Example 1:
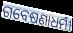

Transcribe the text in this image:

ଗବେଷଣାଧର୍ମୀ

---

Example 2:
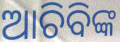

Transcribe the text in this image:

ଆଚିବିଙ୍କ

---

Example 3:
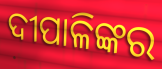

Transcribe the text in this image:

ଦୀପାଳିଙ୍କର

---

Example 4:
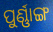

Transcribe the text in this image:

ପୁର୍ଣ୍ଣାଙ୍ଗ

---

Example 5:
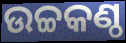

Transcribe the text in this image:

ଉଚ୍ଚକଣ୍ଠ